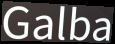
Galba